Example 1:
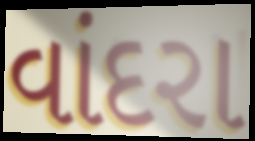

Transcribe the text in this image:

વાંદરા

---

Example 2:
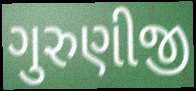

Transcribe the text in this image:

ગુરુણીજી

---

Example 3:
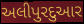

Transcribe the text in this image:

અલીપુરદુઆર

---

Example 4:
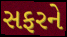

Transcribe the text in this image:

સફરને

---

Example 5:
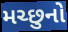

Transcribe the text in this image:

મચ્છુનો